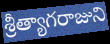
శ్రీత్యాగరాజుని